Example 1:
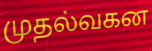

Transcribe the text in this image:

முதல்வகன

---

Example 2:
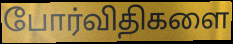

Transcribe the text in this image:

போர்விதிகளை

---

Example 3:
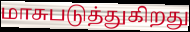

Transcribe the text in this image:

மாசுபடுத்துகிறது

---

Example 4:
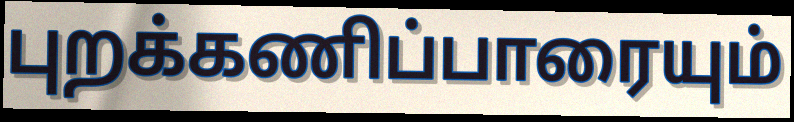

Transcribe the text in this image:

புறக்கணிப்பாரையும்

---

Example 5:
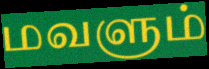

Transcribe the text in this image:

மவளும்